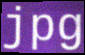
jpg